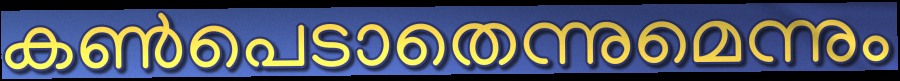
കൺപെടാതെന്നുമെന്നും